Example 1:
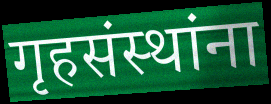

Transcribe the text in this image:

गृहसंस्थांना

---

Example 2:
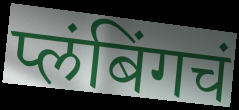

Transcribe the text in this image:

प्लंबिंगचं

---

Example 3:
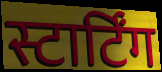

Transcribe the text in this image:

स्टार्टिंग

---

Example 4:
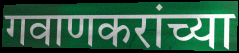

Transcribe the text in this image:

गवाणकरांच्या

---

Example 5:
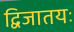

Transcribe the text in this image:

द्विजातयः